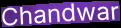
Chandwar